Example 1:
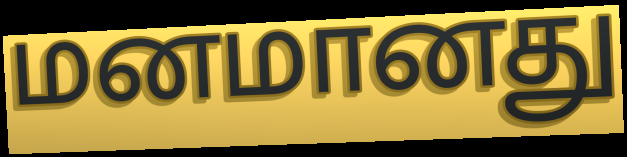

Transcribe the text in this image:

மனமானது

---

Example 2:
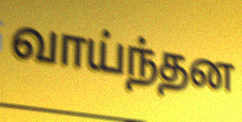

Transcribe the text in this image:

வாய்ந்தன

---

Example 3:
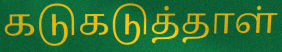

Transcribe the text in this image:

கடுகடுத்தாள்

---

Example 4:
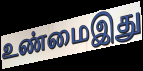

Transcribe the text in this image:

உண்மைஇது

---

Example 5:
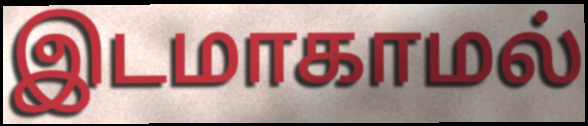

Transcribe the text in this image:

இடமாகாமல்